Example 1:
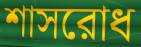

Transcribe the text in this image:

শাসরোধ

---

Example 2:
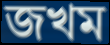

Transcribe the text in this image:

জখম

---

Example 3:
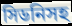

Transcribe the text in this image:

সিডনিসহ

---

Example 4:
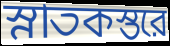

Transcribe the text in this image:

স্নাতকস্তরে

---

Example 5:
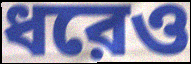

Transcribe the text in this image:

ধরেও